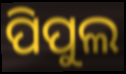
ପିପୁଲ